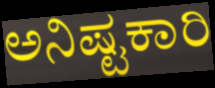
ಅನಿಷ್ಟಕಾರಿ